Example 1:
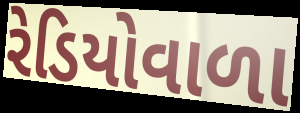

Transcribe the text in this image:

રેડિયોવાળા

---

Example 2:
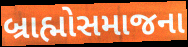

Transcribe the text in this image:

બ્રાહ્મોસમાજના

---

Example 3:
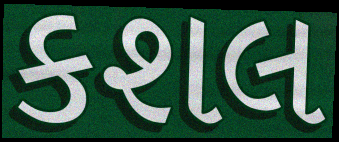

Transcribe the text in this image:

કશલ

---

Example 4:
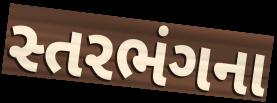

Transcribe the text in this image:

સ્તરભંગના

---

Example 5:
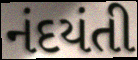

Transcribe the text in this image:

નંદયંતી